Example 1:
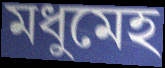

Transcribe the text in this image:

মধুমেহ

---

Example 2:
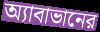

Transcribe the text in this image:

অ্যাবাভানের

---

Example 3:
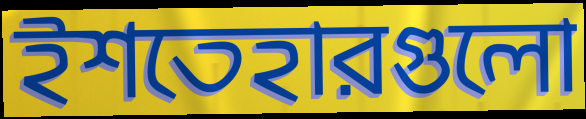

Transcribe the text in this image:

ইশতেহারগুলো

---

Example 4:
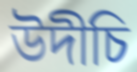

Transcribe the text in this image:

উদীচি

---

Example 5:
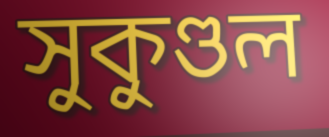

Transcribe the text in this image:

সুকুণ্ডল